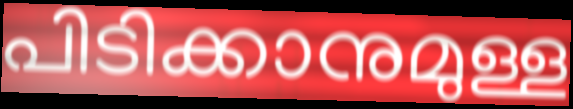
പിടിക്കാനുമുള്ള